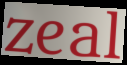
zeal